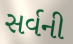
સર્વની